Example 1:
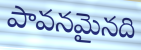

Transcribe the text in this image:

పావనమైనది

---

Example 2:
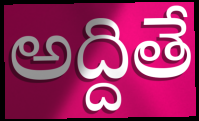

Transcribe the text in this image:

అద్దితే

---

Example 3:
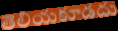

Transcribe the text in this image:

తెలియకూడదు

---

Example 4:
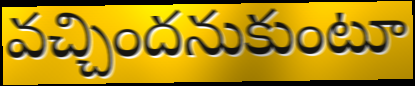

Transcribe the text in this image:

వచ్చిందనుకుంటూ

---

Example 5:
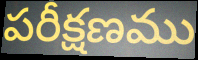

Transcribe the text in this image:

పరీక్షణము